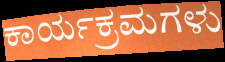
ಕಾರ್ಯಕ್ರಮಗಳು